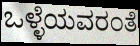
ಒಳ್ಳೆಯವರಂತೆ